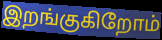
இறங்குகிறோம்